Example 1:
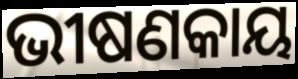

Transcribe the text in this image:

ଭୀଷଣକାୟ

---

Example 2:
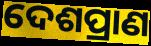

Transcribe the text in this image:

ଦେଶପ୍ରାଣ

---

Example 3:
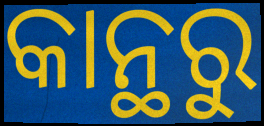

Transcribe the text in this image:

କାନ୍ଥରୁ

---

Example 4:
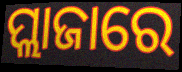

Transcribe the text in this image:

ପ୍ଲାଜାରେ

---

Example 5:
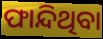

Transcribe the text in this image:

ଫାନ୍ଦିଥିବା